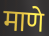
माणे